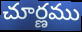
చూర్ణము